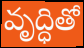
వృద్ధితో